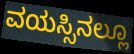
ವಯಸ್ಸಿನಲ್ಲೂ